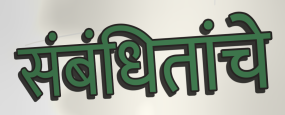
संबंधितांचे